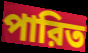
পারিত